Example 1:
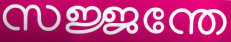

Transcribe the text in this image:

സജ്ജന്തേ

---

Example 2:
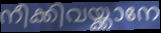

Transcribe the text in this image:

നീക്കിവയ്ക്കാനേ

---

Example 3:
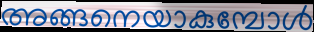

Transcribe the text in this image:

അങ്ങനെയാകുമ്പോൾ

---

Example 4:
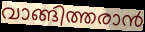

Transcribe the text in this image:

വാങ്ങിത്തരാൻ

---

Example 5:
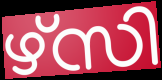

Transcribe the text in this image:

ഴ്സി